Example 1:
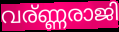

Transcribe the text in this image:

വര്ണ്ണരാജി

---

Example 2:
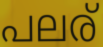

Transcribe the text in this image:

പലര്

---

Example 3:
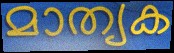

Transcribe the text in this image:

മാത്യക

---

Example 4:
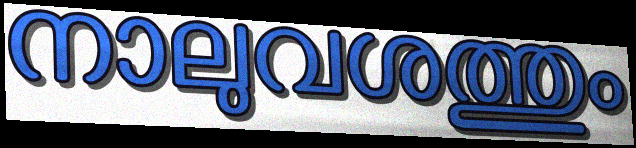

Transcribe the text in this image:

നാലുവശത്തും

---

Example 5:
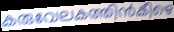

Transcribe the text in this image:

കരുവേലകത്തിൻകീഴെ